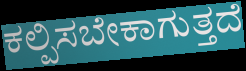
ಕಲ್ಪಿಸಬೇಕಾಗುತ್ತದೆ